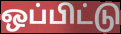
ஒப்பிட்டு